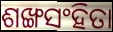
ଶଙ୍ଖସଂହିତା